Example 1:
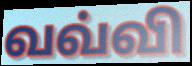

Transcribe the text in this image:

வவ்வி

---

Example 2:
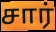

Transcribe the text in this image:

சார்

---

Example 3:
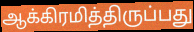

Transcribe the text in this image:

ஆக்கிரமித்திருப்பது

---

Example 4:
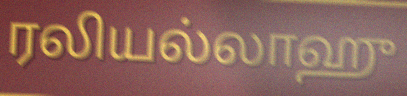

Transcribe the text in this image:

ரலியல்லாஹு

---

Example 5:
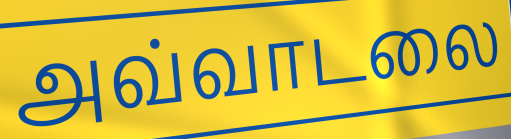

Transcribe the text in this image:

அவ்வாடலை